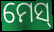
ମେସ୍